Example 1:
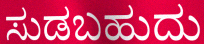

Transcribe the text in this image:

ಸುಡಬಹುದು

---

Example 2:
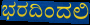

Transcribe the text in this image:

ಭರದಿಂದಲಿ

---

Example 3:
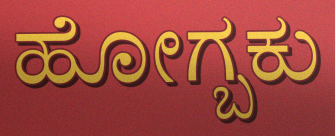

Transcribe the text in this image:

ಹೋಗ್ಬಕು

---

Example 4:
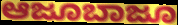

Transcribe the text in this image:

ಆಜೂಬಾಜೂ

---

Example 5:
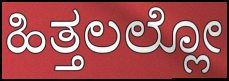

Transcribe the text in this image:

ಹಿತ್ತಲಲ್ಲೋ